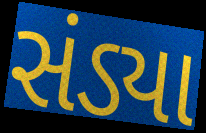
સંડ્યા